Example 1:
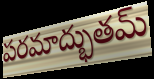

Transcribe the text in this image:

పరమాద్భుతమ్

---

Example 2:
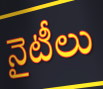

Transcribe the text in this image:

నైటీలు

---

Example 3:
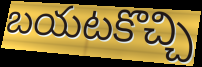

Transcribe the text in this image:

బయటకొచ్చి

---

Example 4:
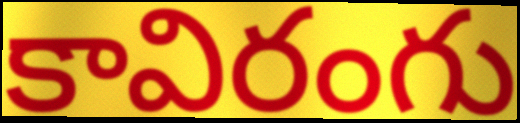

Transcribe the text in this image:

కావిరంగు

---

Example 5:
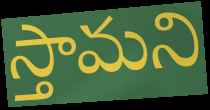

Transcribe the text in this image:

స్తామని